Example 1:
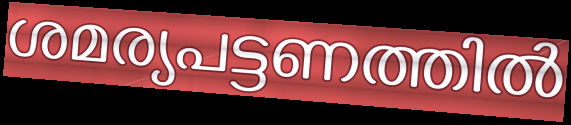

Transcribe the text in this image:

ശമര്യപട്ടണത്തിൽ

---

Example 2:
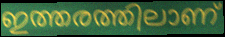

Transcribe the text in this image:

ഇത്തരത്തിലാണ്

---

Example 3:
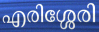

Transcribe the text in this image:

എരിശ്ശേരി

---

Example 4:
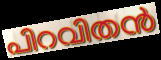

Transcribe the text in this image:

പിറവിതൻ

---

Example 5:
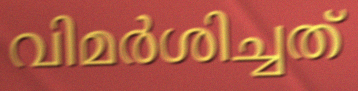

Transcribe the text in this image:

വിമർശിച്ചത്